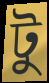
টু